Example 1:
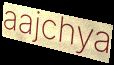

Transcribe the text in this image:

aajchya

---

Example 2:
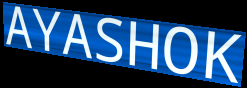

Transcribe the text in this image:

AYASHOK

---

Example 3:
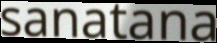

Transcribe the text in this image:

sanatana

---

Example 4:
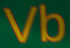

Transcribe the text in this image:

Vb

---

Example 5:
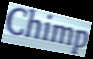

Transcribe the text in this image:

Chimp